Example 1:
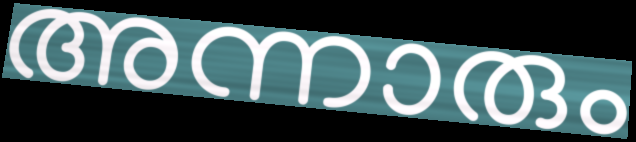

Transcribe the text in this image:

അന്നാരും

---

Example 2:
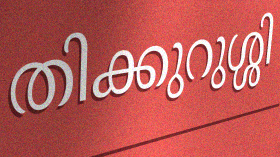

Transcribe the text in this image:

തിക്കുറുശ്ശി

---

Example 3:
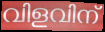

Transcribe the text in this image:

വിളവിന്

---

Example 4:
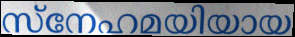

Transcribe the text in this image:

സ്നേഹമയിയായ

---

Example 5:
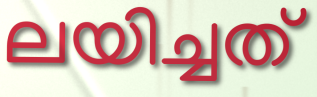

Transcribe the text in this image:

ലയിച്ചത്